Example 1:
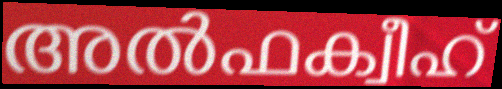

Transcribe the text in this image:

അൽഫക്വീഹ്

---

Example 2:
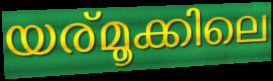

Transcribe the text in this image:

യര്മൂക്കിലെ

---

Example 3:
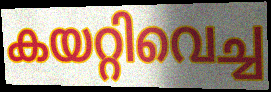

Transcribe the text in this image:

കയറ്റിവെച്ച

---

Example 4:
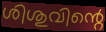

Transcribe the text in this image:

ശിശുവിന്റെ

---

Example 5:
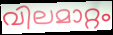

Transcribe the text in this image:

വിലമാറ്റം